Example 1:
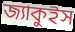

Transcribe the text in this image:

জ্যাকুইস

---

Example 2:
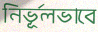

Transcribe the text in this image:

নির্ভূলভাবে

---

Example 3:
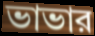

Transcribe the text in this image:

ভাভার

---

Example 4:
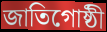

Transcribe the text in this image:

জাতিগোষ্ঠী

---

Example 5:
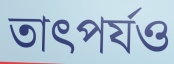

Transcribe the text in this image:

তাৎপর্যও